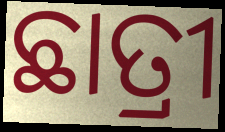
ଛାତ୍ରୀ